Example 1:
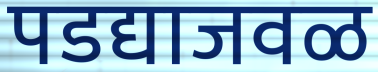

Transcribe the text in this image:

पडद्याजवळ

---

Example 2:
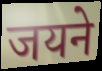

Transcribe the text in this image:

जयने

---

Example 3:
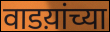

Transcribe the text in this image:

वाडय़ांच्या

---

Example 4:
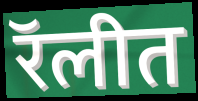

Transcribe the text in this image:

रॅलीत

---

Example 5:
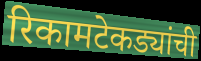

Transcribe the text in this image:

रिकामटेकड्यांची